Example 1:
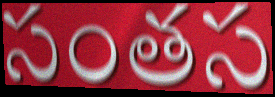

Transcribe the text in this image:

సంతస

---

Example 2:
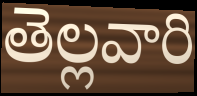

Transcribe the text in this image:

తెల్లవారి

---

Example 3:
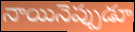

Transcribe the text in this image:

నాయినెప్పుడూ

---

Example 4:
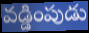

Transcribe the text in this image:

వడ్డింపుడు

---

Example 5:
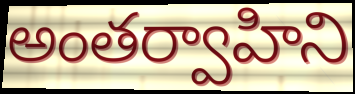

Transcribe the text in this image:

అంతర్వాహిని